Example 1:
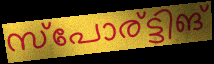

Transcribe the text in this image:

സ്പോര്ട്ടിങ്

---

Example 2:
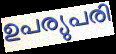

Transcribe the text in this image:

ഉപര്യുപരി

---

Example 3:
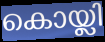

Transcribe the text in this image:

കൊയ്ലി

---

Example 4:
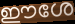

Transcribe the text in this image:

ഈശേ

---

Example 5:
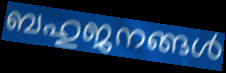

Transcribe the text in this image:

ബഹുജനങ്ങൾ